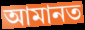
আমানত